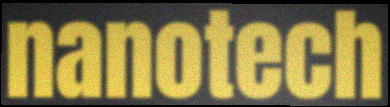
nanotech